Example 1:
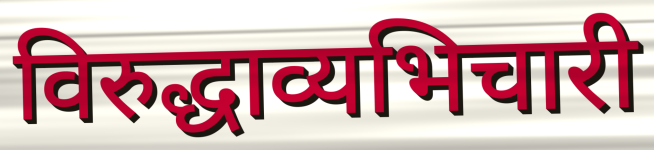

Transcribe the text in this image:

विरुद्धाव्यभिचारी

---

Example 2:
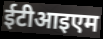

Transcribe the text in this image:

ईटीआइएम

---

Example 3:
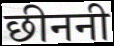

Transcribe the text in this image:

छीननी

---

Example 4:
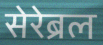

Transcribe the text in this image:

सेरेब्रल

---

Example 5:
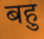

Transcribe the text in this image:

बहु